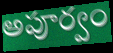
అపూర్వం